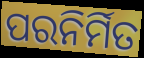
ପରନିର୍ମିତ